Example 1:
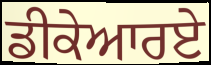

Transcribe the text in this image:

ਡੀਕੇਆਰਏ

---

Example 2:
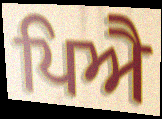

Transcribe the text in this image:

ਪਿਐ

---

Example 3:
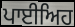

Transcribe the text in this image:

ਪਾਈਅਿਹ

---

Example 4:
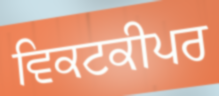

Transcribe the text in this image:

ਵਿਕਟਕੀਪਰ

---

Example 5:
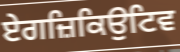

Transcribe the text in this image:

ਏਗਜ਼ਿਕਿਉਟਿਵ